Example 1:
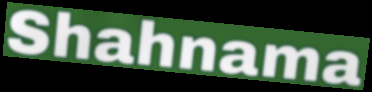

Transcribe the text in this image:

Shahnama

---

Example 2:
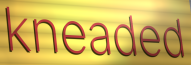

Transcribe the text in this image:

kneaded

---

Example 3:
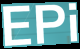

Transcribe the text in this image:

EPi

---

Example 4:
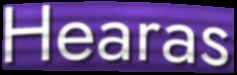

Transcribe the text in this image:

Hearas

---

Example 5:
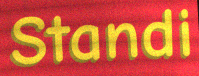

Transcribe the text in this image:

Standi